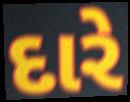
દારે